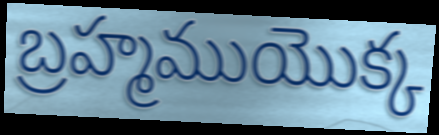
బ్రహ్మముయొక్క